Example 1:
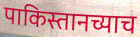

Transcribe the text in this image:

पाकिस्तानच्याच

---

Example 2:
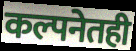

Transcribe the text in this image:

कल्पनेतही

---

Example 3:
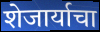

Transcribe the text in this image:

शेजार्याचा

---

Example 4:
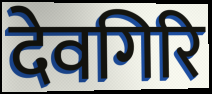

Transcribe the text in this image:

देवगिरि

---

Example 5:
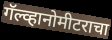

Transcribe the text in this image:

गॅल्व्हानोमीटराचा